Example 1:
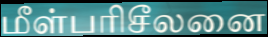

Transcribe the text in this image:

மீள்பரிசீலனை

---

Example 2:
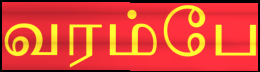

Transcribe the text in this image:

வரம்பே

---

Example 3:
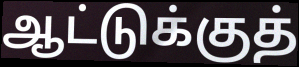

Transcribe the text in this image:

ஆட்டுக்குத்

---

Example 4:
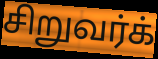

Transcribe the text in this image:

சிறுவர்க்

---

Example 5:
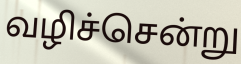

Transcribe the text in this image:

வழிச்சென்று